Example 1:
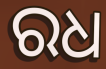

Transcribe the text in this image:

ରଧ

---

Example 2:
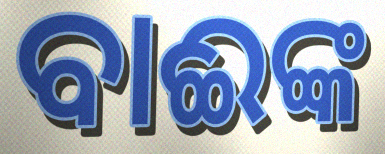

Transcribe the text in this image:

ବାଈଙ୍କ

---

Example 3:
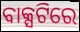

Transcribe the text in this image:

ବାକ୍ସଟିରେ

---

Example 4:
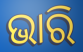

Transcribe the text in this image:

ଭାରି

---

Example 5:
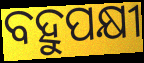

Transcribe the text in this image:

ବହୁପକ୍ଷୀ